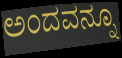
ಅಂದವನ್ನೂ